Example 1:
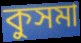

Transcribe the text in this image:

কুসমা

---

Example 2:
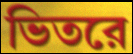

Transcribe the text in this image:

ভিতরে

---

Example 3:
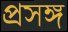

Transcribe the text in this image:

প্রসঙ্গ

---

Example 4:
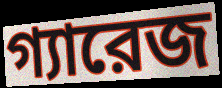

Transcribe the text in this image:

গ্যারেজ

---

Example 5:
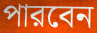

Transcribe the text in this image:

পারবেন